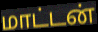
மாட்டன்